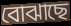
বোঝাছে